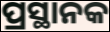
ପ୍ରସ୍ଥାନକ